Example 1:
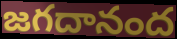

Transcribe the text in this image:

జగదానంద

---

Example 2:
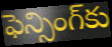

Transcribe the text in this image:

ఫెన్సింగ్‌కు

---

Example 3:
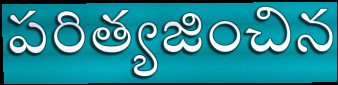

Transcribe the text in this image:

పరిత్యజించిన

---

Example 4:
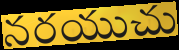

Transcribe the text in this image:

నరయుచు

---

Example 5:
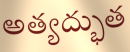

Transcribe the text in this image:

అత్యద్భుత